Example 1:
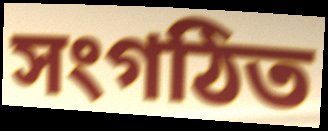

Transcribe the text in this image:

সংগঠিত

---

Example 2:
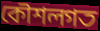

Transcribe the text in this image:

কৌশলগত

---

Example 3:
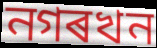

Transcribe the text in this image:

নগৰখন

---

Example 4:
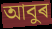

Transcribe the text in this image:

আবুৰ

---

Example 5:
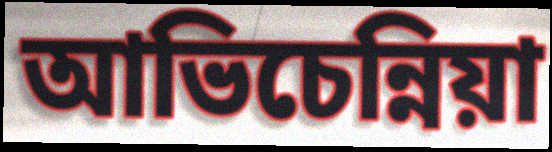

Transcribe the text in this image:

আভিচেন্নিয়া